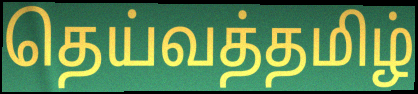
தெய்வத்தமிழ்